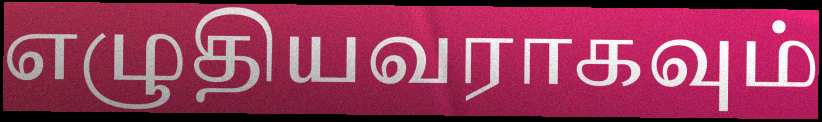
எழுதியவராகவும்